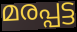
മരപ്പട്ട